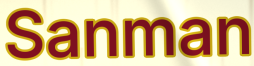
Sanman